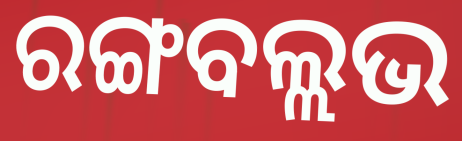
ରଙ୍ଗବଲ୍ଲଭ